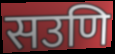
सउणि